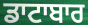
ਡਾਟਾਬਾਰ